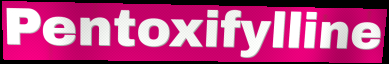
Pentoxifylline